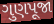
ગુણપૂજા